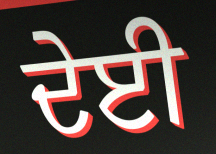
ਦੇਈ